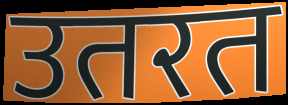
उतरत